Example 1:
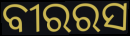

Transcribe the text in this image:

ବୀରରସ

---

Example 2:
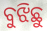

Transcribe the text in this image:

ବୁଝିଛୁ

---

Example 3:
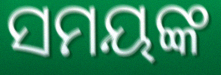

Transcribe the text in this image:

ସମୟଙ୍କ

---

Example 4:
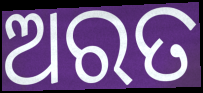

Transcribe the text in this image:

ଅରତ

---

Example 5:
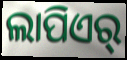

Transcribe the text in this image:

ଲାପିଏର୍